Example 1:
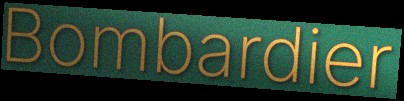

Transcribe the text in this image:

Bombardier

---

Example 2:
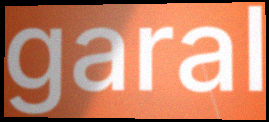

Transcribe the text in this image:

garal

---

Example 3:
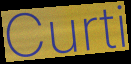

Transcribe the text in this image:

Curti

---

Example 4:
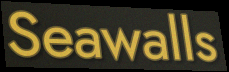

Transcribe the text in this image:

Seawalls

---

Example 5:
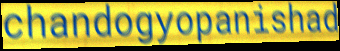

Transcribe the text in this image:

chandogyopanishad